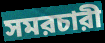
সমরচারী